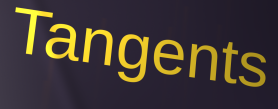
Tangents